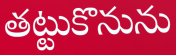
తట్టుకొనును